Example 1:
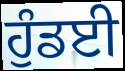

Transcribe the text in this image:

ਹੁੰਡਈ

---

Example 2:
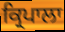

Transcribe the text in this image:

ਕ੍ਰਿਪਾਲਾ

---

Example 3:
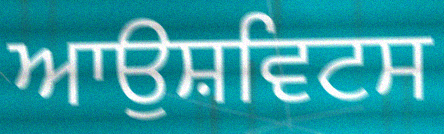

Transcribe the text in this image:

ਆਉਸ਼ਵਿਟਸ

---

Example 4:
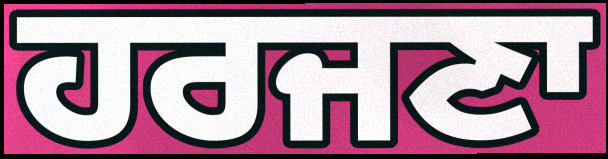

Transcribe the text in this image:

ਹਰਜਣਾ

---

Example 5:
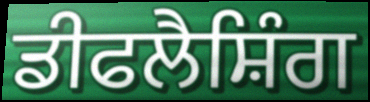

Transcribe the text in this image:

ਡੀਫਲੈਸ਼ਿੰਗ